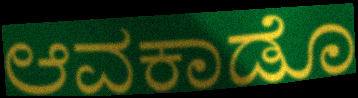
ಆವಕಾಡೊ